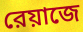
রেয়াজে